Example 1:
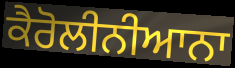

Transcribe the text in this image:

ਕੈਰੋਲੀਨੀਆਨਾ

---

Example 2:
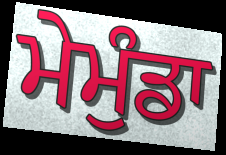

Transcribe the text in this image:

ਮੇਮੁੰਡਾ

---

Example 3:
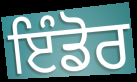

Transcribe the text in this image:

ਇੰਡੋਰ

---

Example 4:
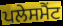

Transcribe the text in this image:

ਪਲੇਸਮੈਂਟ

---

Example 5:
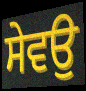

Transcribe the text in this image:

ਸੇਵਉ